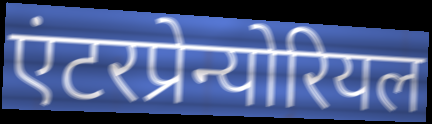
एंटरप्रेन्योरियल